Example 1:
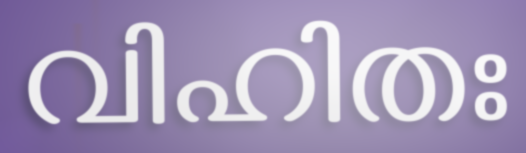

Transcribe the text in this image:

വിഹിതഃ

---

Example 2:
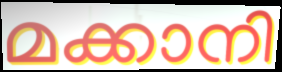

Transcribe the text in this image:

മക്കാനി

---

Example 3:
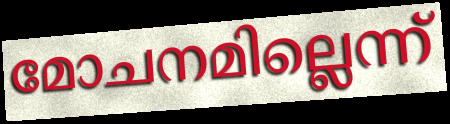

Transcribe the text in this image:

മോചനമില്ലെന്ന്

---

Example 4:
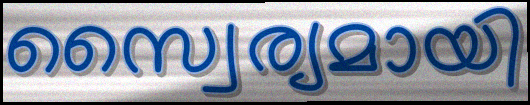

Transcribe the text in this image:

സ്വൈര്യമായി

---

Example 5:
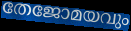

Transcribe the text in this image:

തേജോമയവും